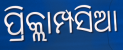
ପ୍ରିକ୍ଲାମ୍ପସିଆ